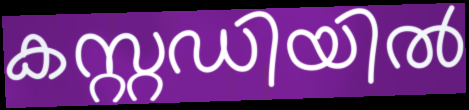
കസ്റ്റഡിയിൽ